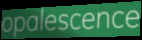
opalescence